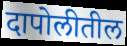
दापोलीतील